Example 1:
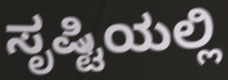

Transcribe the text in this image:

ಸೃಷ್ಟಿಯಲ್ಲಿ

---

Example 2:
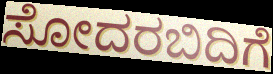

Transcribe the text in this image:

ಸೋದರಬಿದಿಗೆ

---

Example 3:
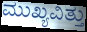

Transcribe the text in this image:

ಮುಖ್ಯವಿತ್ತು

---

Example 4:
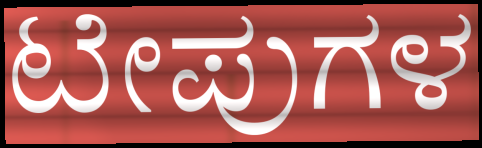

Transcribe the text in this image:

ಟೇಪುಗಳ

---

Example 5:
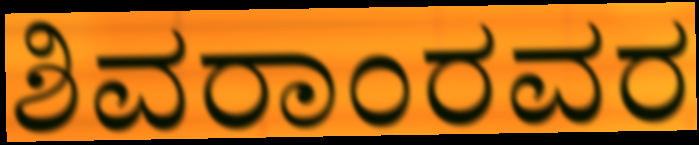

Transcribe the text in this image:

ಶಿವರಾಂರವರ